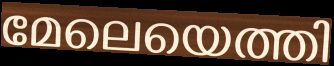
മേലെയെത്തി